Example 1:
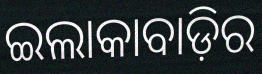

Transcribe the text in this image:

ଇଲାକାବାଡ଼ିର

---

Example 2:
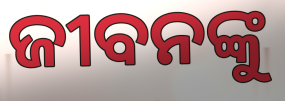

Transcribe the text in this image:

ଜୀବନଙ୍କୁ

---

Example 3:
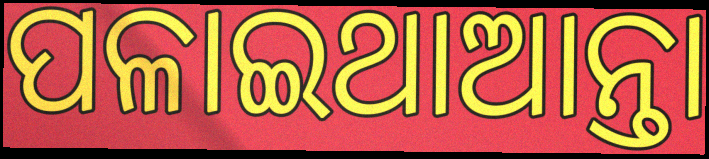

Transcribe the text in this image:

ପଳାଇଥାଆନ୍ତା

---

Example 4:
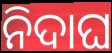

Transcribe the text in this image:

ନିଦାଘ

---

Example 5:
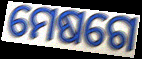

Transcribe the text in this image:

ମେଷଗେ